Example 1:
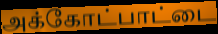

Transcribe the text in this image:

அக்கோட்பாட்டை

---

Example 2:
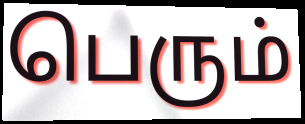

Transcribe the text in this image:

பெரும்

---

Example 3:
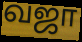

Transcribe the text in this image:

வஜா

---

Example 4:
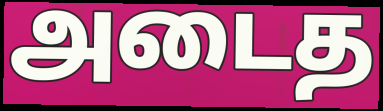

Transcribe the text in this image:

அடைத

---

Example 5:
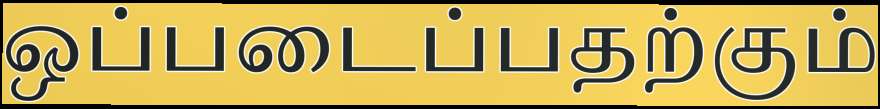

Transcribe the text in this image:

ஒப்படைப்பதற்கும்